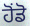
ਹੋਂਡੋ